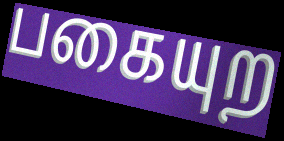
பகையுற